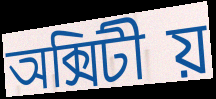
অক্সিটীয়